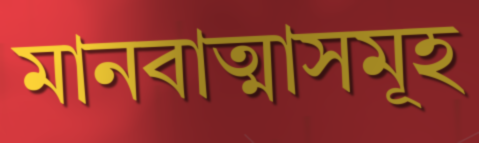
মানবাত্মাসমূহ